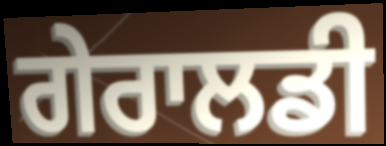
ਗੇਰਾਲਡੀ